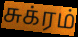
சுக்ரம்